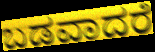
ಬಡವಾದರೆ